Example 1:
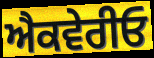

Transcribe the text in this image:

ਐਕਵੇਰੀਓ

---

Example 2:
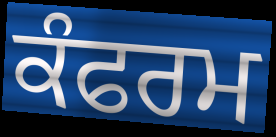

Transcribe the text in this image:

ਕੰਫਰਮ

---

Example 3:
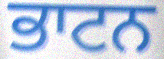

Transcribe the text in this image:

ਭਾਟਨ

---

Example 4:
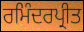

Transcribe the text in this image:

ਰਮਿੰਦਰਪ੍ਰੀਤ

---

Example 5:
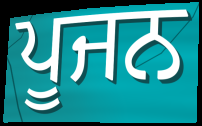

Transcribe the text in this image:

ਪੂਜਨ